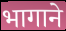
भागाने